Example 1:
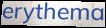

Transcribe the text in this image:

erythema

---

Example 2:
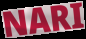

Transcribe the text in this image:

NARI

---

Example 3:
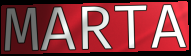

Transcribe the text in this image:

MARTA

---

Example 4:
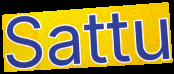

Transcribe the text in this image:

Sattu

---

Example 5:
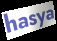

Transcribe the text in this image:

hasya